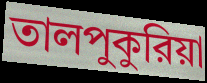
তালপুকুরিয়া